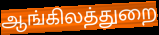
ஆங்கிலத்துறை